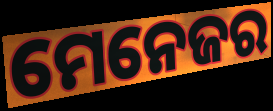
ମେନେଜର